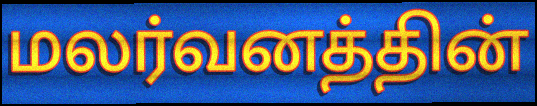
மலர்வனத்தின்